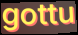
gottu